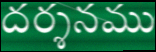
దర్శనము